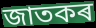
জাতকৰ